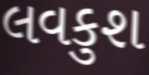
લવકુશ